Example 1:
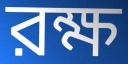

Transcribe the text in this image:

রক্ষ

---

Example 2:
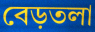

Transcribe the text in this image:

বেড়তলা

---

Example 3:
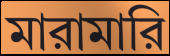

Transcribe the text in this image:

মারামারি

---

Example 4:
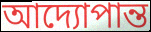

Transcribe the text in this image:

আদ্যোপান্ত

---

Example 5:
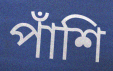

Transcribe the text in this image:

পাঁশি